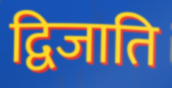
द्विजाति